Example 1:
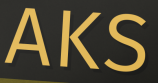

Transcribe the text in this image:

AKS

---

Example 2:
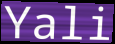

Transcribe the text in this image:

Yali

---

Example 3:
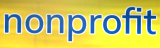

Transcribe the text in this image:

nonprofit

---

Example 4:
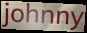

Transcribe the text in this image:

johnny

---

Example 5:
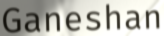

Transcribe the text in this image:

Ganeshan